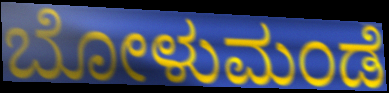
ಬೋಳುಮಂಡೆ